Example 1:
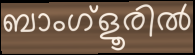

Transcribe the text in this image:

ബാംഗ്ളൂരിൽ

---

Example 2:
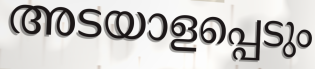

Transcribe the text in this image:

അടയാളപ്പെടും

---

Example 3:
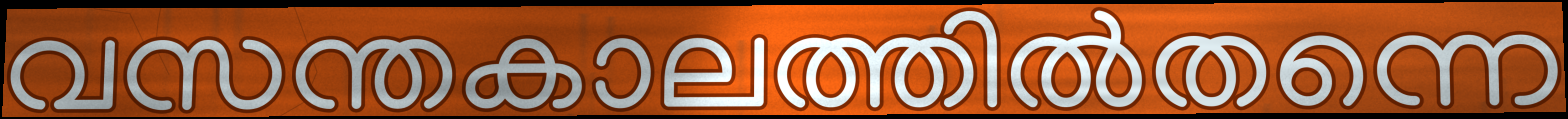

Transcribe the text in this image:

വസന്തകാലത്തിൽതന്നെ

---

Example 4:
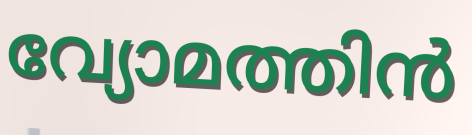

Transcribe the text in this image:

വ്യോമത്തിൻ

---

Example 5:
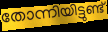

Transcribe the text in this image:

തോന്നിയിട്ടുണ്ട്